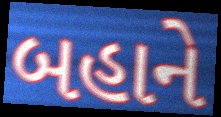
બહાને